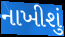
નાખીશું